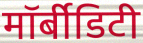
मॉर्बीडिटी